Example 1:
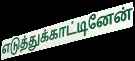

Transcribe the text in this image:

எடுத்துக்காட்டினேன்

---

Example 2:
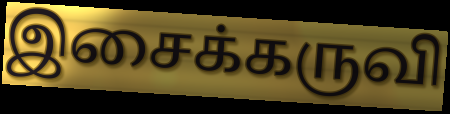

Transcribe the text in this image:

இசைக்கருவி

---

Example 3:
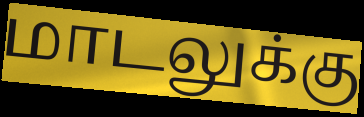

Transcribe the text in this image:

மாடலுக்கு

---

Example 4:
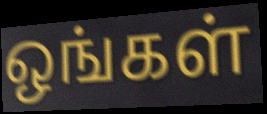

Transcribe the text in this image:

ஒங்கள்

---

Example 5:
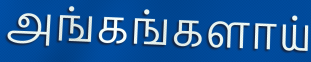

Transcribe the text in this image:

அங்கங்களாய்